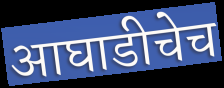
आघाडीचेच